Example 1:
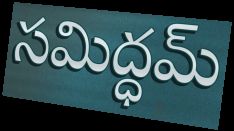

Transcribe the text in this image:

సమిద్ధమ్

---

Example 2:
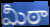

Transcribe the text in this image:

మీఠా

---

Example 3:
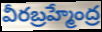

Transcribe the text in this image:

వీరబ్రహ్మేంద్ర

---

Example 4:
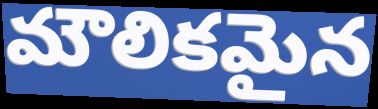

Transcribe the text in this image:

మౌలికమైన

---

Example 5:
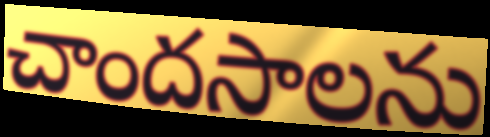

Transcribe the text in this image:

చాందసాలను